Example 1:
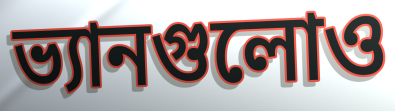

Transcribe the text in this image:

ভ্যানগুলোও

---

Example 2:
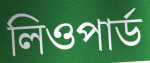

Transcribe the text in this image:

লিওপার্ড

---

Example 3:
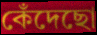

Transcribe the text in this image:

কেঁদেছো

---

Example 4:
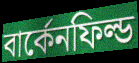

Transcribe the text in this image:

বার্কেনফিল্ড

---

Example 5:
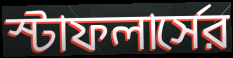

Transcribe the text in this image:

স্টাফলার্সের